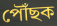
পৌঁছক